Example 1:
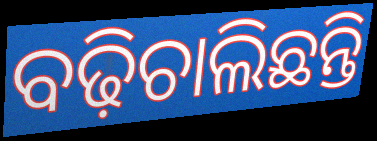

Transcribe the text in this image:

ବଢ଼ିଚାଲିଛନ୍ତି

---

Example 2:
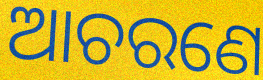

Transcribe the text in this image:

ଆଚରଣେ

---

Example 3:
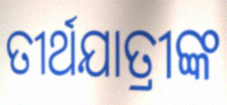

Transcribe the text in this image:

ତୀର୍ଥଯାତ୍ରୀଙ୍କ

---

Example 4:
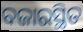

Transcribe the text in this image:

ବଜାରସ୍ଥିତ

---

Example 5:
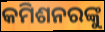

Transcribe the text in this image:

କମିଶନରଙ୍କୁ